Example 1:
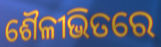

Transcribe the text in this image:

ଶୈଳୀଭିତରେ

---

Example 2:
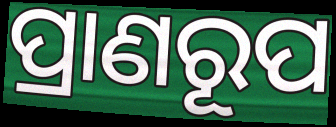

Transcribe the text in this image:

ପ୍ରାଣରୂପ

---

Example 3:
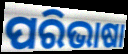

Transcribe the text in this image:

ପରିଭାଷା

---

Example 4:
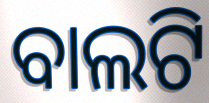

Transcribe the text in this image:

ବାଲଟି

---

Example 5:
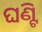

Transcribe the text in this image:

ଘଣ୍ଟି